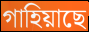
গাহিয়াছে